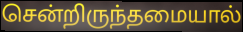
சென்றிருந்தமையால்